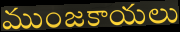
ముంజకాయలు